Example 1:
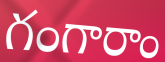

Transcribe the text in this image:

గంగారాం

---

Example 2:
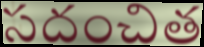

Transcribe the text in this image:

సదంచిత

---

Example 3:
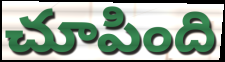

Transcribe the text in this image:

చూపింది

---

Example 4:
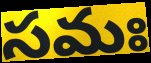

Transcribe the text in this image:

సమః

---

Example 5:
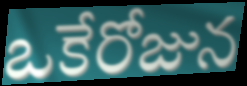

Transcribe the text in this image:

ఒకేరోజున